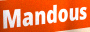
Mandous